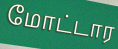
மோட்டார